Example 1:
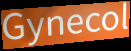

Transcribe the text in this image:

Gynecol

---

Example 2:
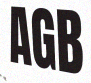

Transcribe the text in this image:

AGB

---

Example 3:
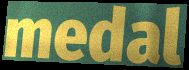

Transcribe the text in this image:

medal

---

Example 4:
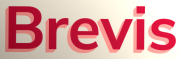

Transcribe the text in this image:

Brevis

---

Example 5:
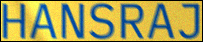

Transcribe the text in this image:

HANSRAJ